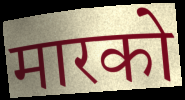
मारको